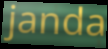
janda